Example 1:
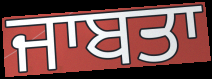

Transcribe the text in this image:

ਜਾਬਤਾ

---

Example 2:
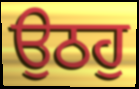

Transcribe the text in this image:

ਉਠਹੁ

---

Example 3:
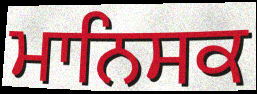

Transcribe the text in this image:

ਮਾਨਿਸਕ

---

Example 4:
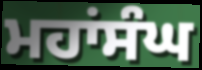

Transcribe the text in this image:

ਮਹਾਂਸੰਘ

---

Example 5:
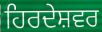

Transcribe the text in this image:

ਹਿਰਦੇਸ਼ਵਰ